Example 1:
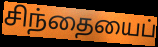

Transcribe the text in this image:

சிந்தையைப்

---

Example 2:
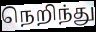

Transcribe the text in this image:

நெறிந்து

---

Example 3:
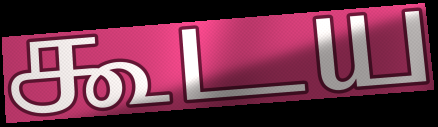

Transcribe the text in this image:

கூடய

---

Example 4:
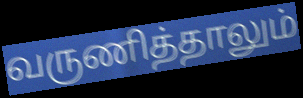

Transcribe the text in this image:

வருணித்தாலும்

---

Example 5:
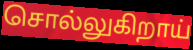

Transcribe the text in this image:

சொல்லுகிறாய்